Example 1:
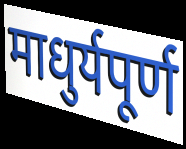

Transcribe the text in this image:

माधुर्यपूर्ण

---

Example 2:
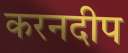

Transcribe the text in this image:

करनदीप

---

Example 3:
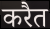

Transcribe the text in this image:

करैत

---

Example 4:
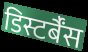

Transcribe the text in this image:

डिस्टर्बैंस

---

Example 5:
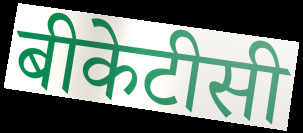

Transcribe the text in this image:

बीकेटीसी